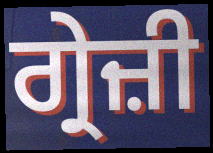
ਗ੍ਰੇਜ਼ੀ